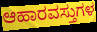
ಆಹಾರವಸ್ತುಗಳ